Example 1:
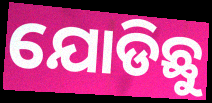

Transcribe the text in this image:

ଯୋଡିଛୁ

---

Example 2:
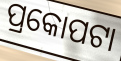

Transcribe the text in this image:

ପ୍ରକୋପଟା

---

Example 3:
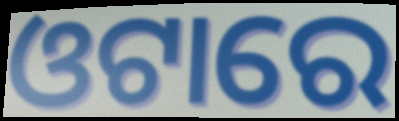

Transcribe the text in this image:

ଓଟାରେ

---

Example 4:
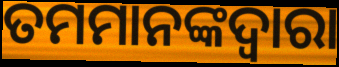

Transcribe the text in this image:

ତମମାନଙ୍କଦ୍ଵାରା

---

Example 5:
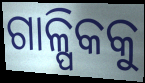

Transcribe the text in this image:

ଗାଳ୍ପିକକୁ